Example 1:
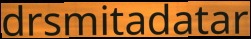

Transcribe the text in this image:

drsmitadatar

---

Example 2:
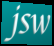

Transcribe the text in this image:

jsw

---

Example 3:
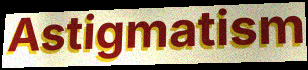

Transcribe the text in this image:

Astigmatism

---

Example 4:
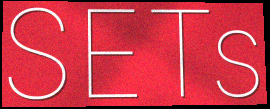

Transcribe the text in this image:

SETs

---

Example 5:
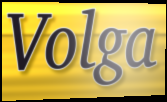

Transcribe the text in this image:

Volga